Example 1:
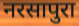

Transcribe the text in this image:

नरसापुरा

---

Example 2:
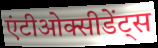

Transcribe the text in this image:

एंटीओक्सीडेंट्स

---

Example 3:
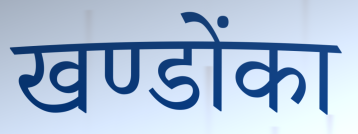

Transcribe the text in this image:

खण्डोंका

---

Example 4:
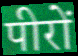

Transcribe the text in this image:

पीरों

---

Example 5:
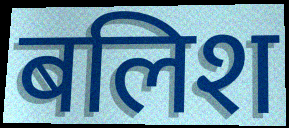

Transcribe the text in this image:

बलिश